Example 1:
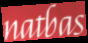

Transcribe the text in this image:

natbas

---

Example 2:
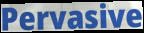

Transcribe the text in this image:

Pervasive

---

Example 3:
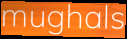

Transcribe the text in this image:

mughals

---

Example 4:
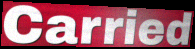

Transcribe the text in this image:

Carried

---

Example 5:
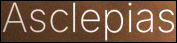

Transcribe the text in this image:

Asclepias